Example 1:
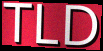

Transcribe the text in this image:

TLD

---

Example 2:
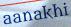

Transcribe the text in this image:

aanakhi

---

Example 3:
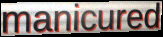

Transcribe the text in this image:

manicured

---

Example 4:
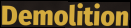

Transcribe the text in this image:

Demolition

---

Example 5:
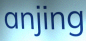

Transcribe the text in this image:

anjing